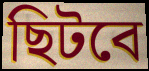
ছিটবে